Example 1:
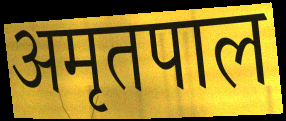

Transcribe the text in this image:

अमृतपाल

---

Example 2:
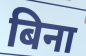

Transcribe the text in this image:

बिना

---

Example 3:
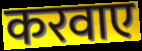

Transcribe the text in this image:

करवाए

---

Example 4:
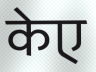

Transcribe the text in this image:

केए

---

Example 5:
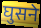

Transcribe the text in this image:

घुसने